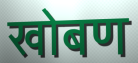
खोबण